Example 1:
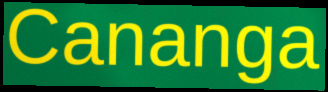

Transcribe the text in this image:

Cananga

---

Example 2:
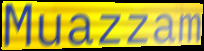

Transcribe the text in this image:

Muazzam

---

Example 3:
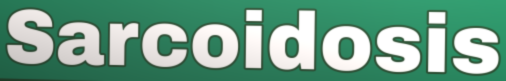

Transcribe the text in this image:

Sarcoidosis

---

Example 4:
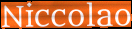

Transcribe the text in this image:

Niccolao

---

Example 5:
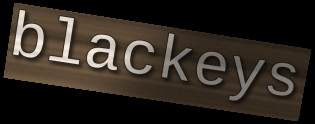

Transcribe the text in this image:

blackeys